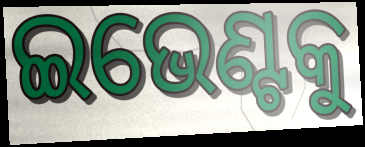
ଇଭେଣ୍ଟକୁ